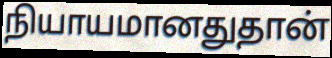
நியாயமானதுதான்